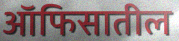
ऑफिसातील